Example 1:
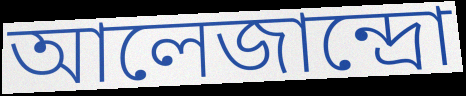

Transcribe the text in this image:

আলেজান্দ্রো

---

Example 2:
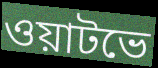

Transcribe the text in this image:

ওয়াটভে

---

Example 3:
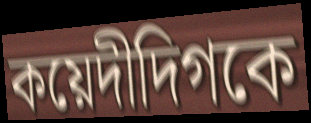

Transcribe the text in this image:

কয়েদীদিগকে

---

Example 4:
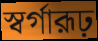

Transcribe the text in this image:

স্বর্গারূঢ়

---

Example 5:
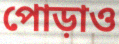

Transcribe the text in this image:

পোড়াও